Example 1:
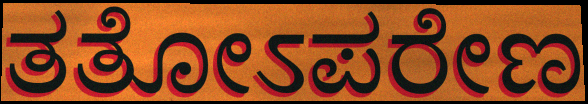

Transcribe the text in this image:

ತತೋಽಪರೇಣ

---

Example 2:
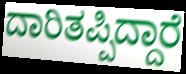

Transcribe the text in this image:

ದಾರಿತಪ್ಪಿದ್ದಾರೆ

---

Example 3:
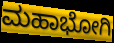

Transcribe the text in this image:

ಮಹಾಭೋಗಿ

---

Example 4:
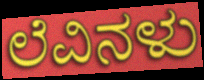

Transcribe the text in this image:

ಲೆವಿನಳು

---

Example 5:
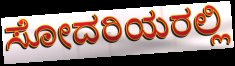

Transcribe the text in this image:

ಸೋದರಿಯರಲ್ಲಿ